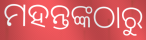
ମହନ୍ତଙ୍କଠାରୁ